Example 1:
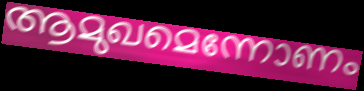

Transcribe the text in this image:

ആമുഖമെന്നോണം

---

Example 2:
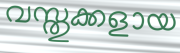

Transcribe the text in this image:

വസ്തുക്കളായ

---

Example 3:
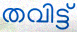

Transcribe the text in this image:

തവിട്ട്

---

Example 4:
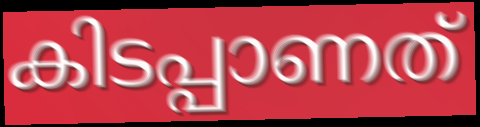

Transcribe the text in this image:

കിടപ്പാണത്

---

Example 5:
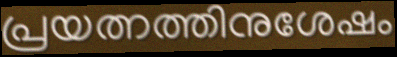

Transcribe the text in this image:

പ്രയത്നത്തിനുശേഷം